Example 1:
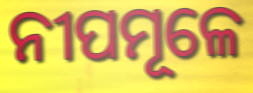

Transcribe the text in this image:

ନୀପମୂଳେ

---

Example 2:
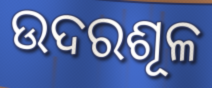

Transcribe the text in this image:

ଉଦରଶୂଳ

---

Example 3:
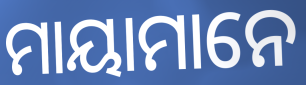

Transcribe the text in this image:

ମାୟାମାନେ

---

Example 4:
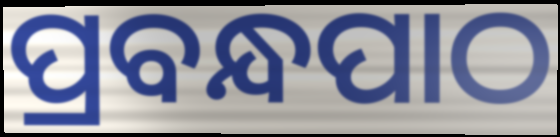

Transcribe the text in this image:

ପ୍ରବନ୍ଧପାଠ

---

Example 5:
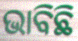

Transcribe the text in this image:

ଭାବିଛି